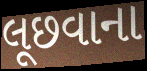
લૂછવાના